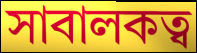
সাবালকত্ব